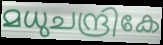
മധുചന്ദ്രികേ